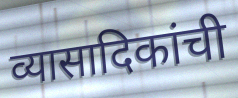
व्यासादिकांची